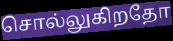
சொல்லுகிறதோ